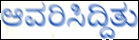
ಆವರಿಸಿದ್ದಿತು